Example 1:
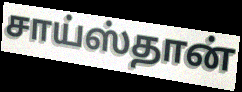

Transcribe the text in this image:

சாய்ஸ்தான்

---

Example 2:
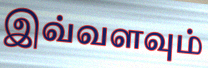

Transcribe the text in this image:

இவ்வளவும்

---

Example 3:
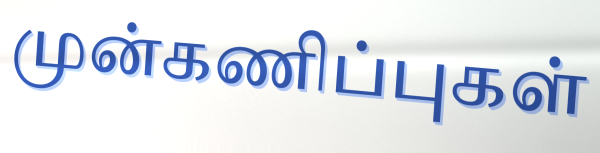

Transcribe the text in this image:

முன்கணிப்புகள்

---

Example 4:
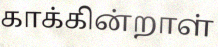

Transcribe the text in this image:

காக்கின்றாள்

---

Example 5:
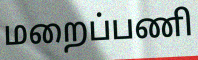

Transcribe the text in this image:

மறைப்பணி